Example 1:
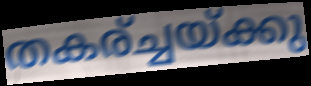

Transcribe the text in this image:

തകര്ച്ചയ്ക്കു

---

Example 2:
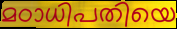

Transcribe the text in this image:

മഠാധിപതിയെ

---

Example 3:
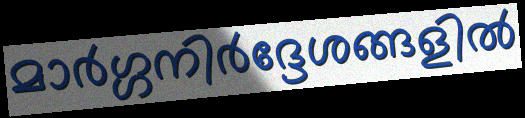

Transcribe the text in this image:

മാർഗ്ഗനിർദ്ദേശങ്ങളിൽ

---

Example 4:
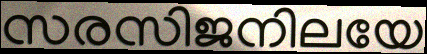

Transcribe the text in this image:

സരസിജനിലയേ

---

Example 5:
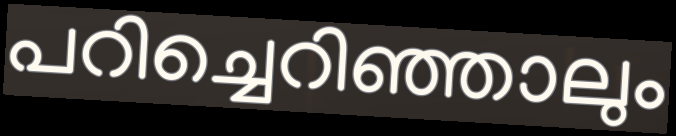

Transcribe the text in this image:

പറിച്ചെറിഞ്ഞാലും